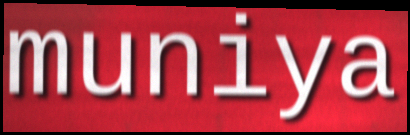
muniya